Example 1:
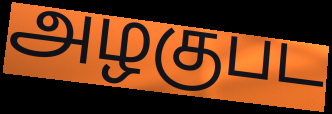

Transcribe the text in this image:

அழகுபட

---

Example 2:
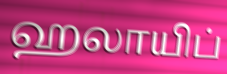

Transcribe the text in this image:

ஹலாயிப்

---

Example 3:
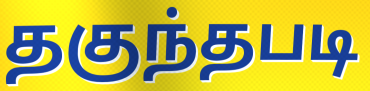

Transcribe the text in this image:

தகுந்தபடி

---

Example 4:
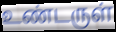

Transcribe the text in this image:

உண்டருள்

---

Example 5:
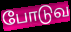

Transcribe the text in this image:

போடுவ